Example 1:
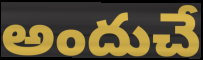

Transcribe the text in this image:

అందుచే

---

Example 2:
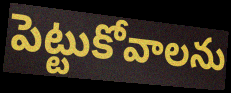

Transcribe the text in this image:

పెట్టుకోవాలను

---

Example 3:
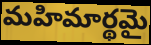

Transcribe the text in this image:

మహిమార్థమై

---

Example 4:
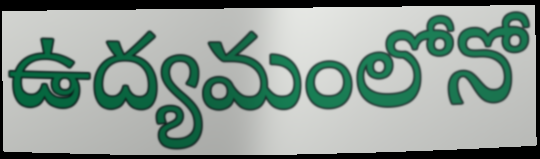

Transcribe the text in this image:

ఉద్యమంలోనో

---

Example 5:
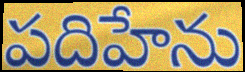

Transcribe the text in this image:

పదిహేను